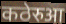
कठेरुआ